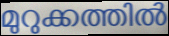
മുറുക്കത്തിൽ